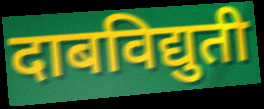
दाबविद्युती